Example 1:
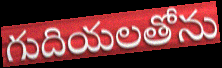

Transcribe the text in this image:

గుదియలతోను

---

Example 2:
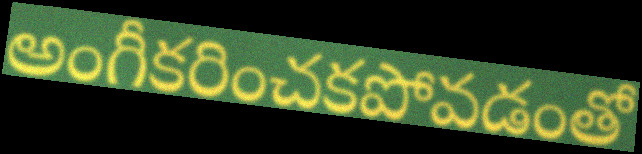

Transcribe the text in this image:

అంగీకరించకపోవడంతో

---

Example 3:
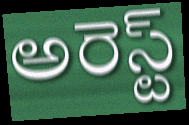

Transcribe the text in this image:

అరెస్ట్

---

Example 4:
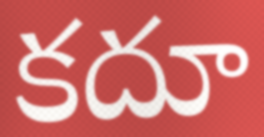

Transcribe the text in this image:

కదూ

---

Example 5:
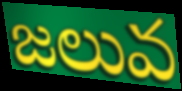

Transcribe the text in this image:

జలువ